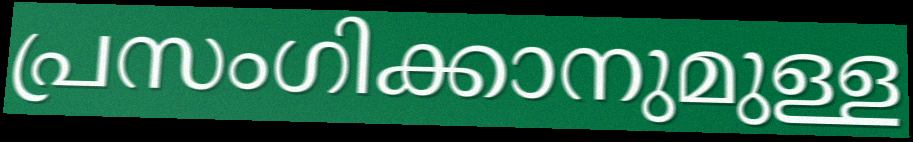
പ്രസംഗിക്കാനുമുള്ള